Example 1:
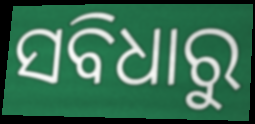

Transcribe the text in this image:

ସବିଧାରୁ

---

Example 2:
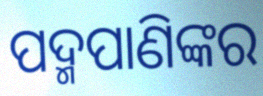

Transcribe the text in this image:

ପଦ୍ମପାଣିଙ୍କର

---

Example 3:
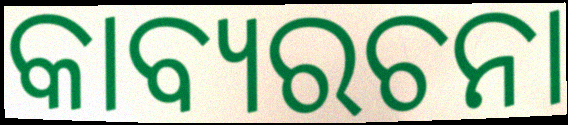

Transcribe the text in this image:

କାବ୍ୟରଚନା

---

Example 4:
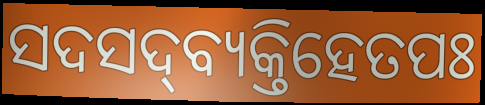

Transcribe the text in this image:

ସଦସଦ୍‌ବ୍ୟକ୍ତିହେତପଃ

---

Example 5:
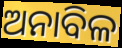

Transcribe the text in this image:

ଅନାବିଳ